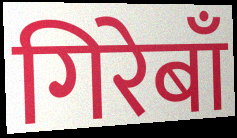
गिरेबाँ